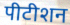
पीटीशन